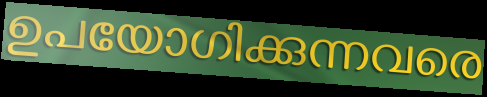
ഉപയോഗിക്കുന്നവരെ